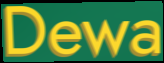
Dewa